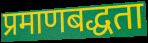
प्रमाणबद्धता